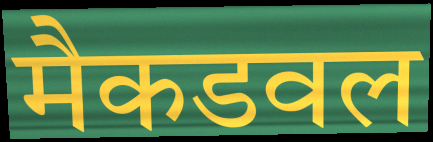
मैकडवल